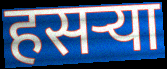
हसऱ्या